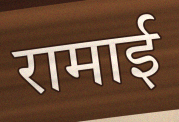
रामाई